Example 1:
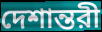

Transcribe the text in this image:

দেশান্তরী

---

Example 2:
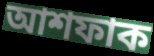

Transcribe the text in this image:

আশফাক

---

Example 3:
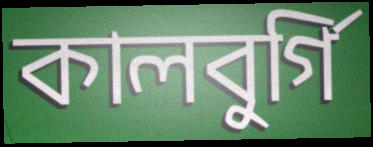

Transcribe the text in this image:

কালবুর্গি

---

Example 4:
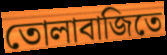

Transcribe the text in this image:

তোলাবাজিতে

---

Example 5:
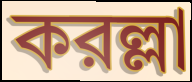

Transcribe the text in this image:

করল্লা